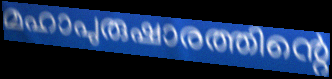
മഹാപുരുഷാരത്തിന്റെ